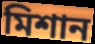
মিশান